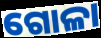
ଗୋଳା